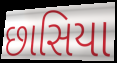
છાસિયા